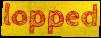
lopped